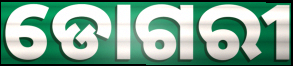
ଡୋଗରୀ